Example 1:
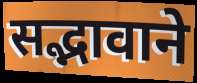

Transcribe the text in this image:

सद्भावाने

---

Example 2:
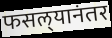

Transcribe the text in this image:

फसल्यानंतर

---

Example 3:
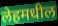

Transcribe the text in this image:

लेहमधील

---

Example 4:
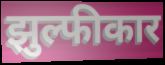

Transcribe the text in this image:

झुल्फीकार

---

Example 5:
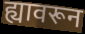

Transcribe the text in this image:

ह्यावरून